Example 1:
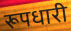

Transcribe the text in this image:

रूपधारी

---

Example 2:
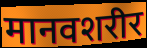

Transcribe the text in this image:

मानवशरीर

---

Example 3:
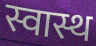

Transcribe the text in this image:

स्वास्थ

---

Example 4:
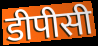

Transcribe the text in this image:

डीपीसी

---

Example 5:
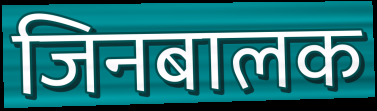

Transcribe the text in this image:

जिनबालक